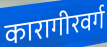
कारागीरवर्ग